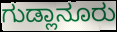
ಗುಡ್ಲಾನೂರು